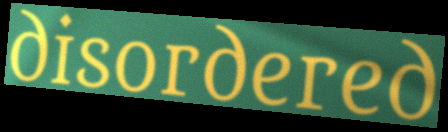
disordered